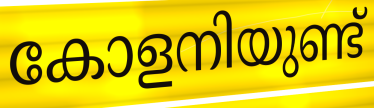
കോളനിയുണ്ട്